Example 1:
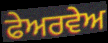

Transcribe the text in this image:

ਫੇਅਰਵੇਅ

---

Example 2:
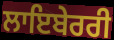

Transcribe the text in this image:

ਲਾਇਬੇਰਰੀ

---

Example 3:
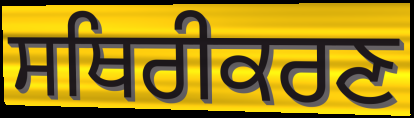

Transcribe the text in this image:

ਸਥਿਰੀਕਰਣ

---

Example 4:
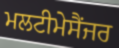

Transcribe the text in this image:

ਮਲਟੀਮੇਸੈਂਜਰ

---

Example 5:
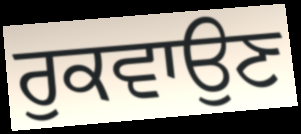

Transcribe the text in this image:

ਰੁਕਵਾਉਣ